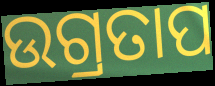
ଉଗ୍ରତାପ